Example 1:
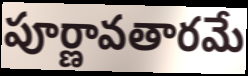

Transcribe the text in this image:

పూర్ణావతారమే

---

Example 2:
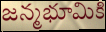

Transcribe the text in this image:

జన్మభూమికి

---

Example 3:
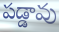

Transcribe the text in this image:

పడ్డావు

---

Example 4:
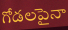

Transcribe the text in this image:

గోడలపైనా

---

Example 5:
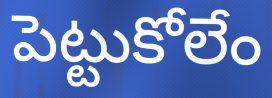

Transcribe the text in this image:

పెట్టుకోలేం